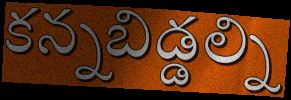
కన్నబిడ్డల్ని